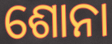
ଶୋନା